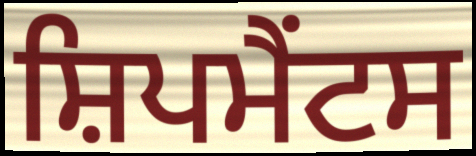
ਸ਼ਿਪਮੈਂਟਸ